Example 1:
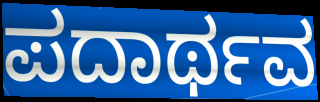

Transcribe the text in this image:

ಪದಾರ್ಥವ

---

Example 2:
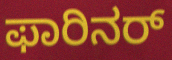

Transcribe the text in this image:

ಫಾರಿನರ್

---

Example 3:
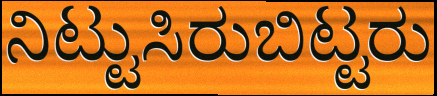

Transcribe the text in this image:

ನಿಟ್ಟುಸಿರುಬಿಟ್ಟರು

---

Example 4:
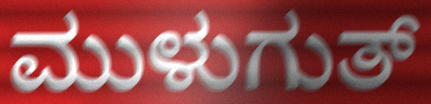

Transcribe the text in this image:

ಮುಳುಗುತ್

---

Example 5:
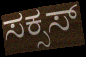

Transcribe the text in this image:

ಸಕ್ಸಸ್